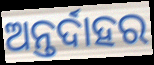
ଅନ୍ତର୍ଦାହର